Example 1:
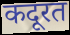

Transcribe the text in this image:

कदूरत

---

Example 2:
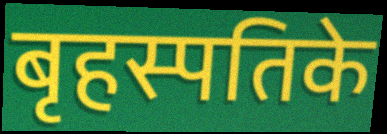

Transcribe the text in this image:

बृहस्पतिके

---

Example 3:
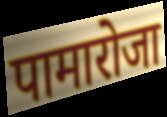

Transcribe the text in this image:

पामारोजा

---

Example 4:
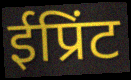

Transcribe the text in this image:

ईप्रिंट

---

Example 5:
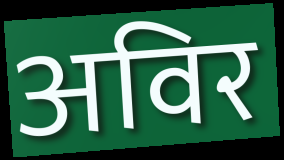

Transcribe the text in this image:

अविर